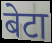
बेटा